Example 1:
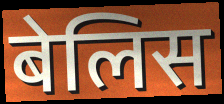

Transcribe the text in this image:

बेलिस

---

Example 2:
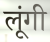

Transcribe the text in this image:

लूंगी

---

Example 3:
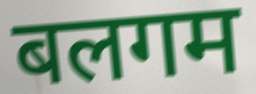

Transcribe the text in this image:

बलगम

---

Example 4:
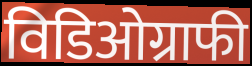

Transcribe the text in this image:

विडिओग्राफी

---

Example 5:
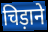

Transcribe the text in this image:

चिड़ाने